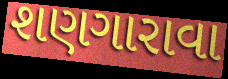
શણગારાવા